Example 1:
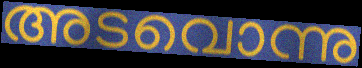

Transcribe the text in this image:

അടവൊന്നു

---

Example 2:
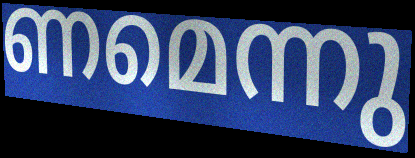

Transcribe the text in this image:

ണമെന്നു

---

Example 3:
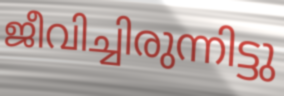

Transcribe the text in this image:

ജീവിച്ചിരുന്നിട്ടു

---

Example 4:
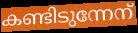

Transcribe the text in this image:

കണ്ടിടുന്നേന്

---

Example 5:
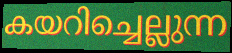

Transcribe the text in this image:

കയറിച്ചെല്ലുന്ന